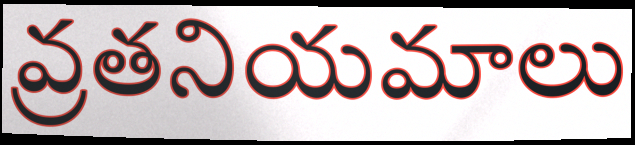
వ్రతనియమాలు